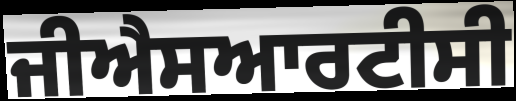
ਜੀਐਸਆਰਟੀਸੀ